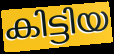
കിട്ടിയ